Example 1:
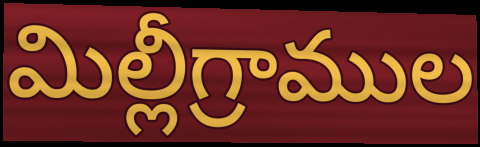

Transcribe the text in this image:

మిల్లీగ్రాముల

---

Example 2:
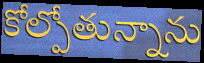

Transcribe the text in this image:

కోల్పోతున్నాను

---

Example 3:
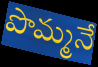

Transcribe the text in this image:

పొమ్మనే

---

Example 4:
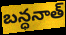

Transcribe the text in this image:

బన్ధనాత్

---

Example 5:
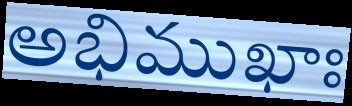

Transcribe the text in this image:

అభిముఖాః